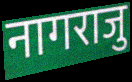
नागराजु